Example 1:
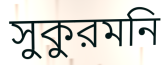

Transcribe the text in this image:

সুকুরমনি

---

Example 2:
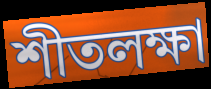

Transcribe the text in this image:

শীতলক্ষা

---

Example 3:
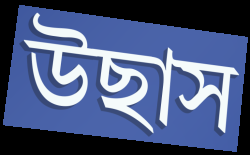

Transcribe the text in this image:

উছাস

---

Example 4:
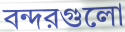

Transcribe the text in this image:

বন্দরগুলো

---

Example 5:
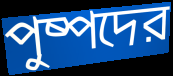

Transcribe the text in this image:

পুষ্পদের